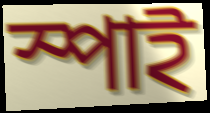
স্পাই